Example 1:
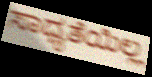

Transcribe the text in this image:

ಸಾಧ್ಯತೆಯಿಲ್ಲ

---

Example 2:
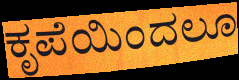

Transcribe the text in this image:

ಕೃಪೆಯಿಂದಲೂ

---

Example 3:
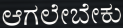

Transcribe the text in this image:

ಆಗಲೇಬೇಕು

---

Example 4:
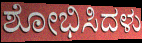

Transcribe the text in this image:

ಶೋಭಿಸಿದಳು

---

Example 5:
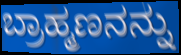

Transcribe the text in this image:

ಬ್ರಾಹ್ಮಣನನ್ನು